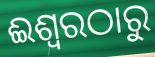
ଈଶ୍ୱରଠାରୁ